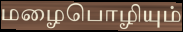
மழைபொழியும்